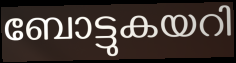
ബോട്ടുകയറി